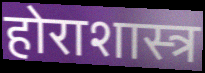
होराशास्त्र